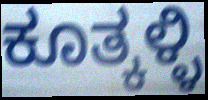
ಕೂತ್ಕಳ್ಳಿ